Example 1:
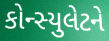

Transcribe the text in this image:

કોન્સ્યુલેટને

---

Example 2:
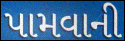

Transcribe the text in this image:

પામવાની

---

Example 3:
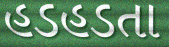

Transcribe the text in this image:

હડહડતા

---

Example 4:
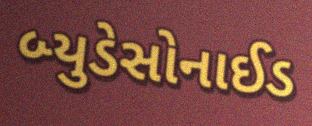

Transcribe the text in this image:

બ્યુડેસોનાઈડ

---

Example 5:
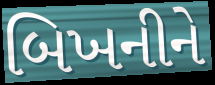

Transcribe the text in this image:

બિખનીને